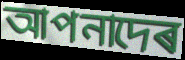
আপনাদেৰ